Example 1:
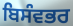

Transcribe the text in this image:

ਬਿਸੰਵਭਰ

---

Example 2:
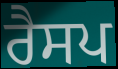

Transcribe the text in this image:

ਰੈਸਪ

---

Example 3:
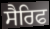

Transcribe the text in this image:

ਸੈਰਿਫ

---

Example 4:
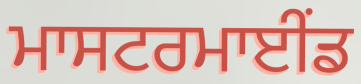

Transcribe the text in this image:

ਮਾਸਟਰਮਾਈਂਡ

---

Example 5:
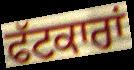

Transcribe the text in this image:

ਫੱਟਕਾਰਾਂ